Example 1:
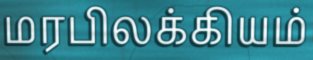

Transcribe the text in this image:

மரபிலக்கியம்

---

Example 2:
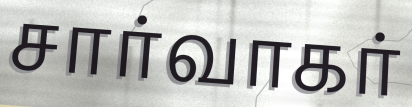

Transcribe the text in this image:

சார்வாகர்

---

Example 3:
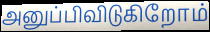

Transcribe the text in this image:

அனுப்பிவிடுகிறோம்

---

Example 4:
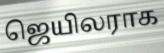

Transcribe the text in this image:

ஜெயிலராக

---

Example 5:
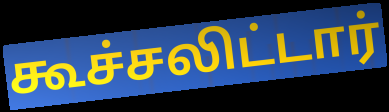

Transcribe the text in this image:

கூச்சலிட்டார்